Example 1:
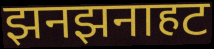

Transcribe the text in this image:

झनझनाहट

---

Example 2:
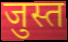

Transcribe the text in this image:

जुस्त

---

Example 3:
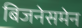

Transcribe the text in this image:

बिजनेसमेन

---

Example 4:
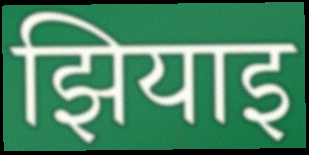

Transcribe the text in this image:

झियाइ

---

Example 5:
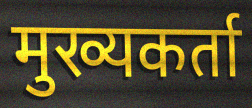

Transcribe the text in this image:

मुख्यकर्ता